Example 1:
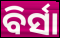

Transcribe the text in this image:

ବିର୍ସା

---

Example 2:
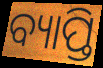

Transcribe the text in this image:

ବ୍ୟାପ୍ତି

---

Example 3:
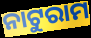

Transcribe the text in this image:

ନାଟୁରାମ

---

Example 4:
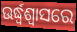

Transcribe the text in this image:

ଊର୍ଦ୍ଧ୍ୱଶ୍ୱାସରେ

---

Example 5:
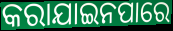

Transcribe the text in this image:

କରାଯାଇନପାରେ